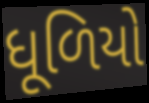
ધૂળિયો